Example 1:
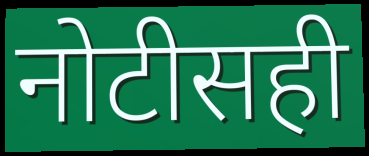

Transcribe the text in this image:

नोटीसही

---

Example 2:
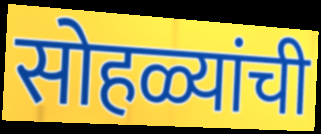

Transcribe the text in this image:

सोहळ्यांची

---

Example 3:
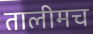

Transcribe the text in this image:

तालीमच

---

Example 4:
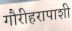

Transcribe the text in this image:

गौरीहरापाशी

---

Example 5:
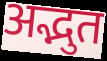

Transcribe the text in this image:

अद्भुत